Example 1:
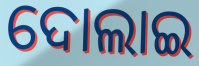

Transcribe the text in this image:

ଦୋଲାଇ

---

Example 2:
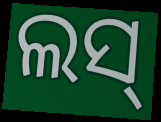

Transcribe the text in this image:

ଲସ୍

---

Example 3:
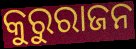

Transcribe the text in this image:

କୁରୁରାଜନ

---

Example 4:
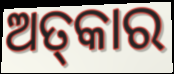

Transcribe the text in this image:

ଅତ୍‌କାର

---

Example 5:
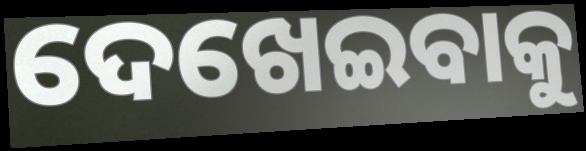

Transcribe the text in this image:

ଦେଖେଇବାକୁ